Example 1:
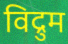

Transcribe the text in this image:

विद्रुम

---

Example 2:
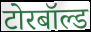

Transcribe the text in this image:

टोरबॉल्ड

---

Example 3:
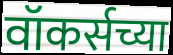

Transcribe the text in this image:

वॉकर्सच्या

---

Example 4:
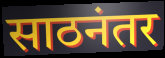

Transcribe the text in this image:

साठनंतर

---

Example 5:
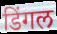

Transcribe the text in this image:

डिंगल